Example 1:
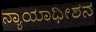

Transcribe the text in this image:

ನ್ಯಾಯಾಧೀಶನ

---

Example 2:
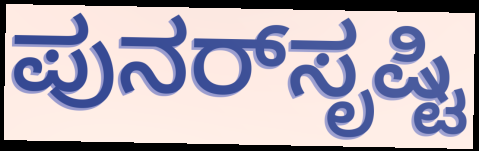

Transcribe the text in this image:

ಪುನರ್‌ಸೃಷ್ಟಿ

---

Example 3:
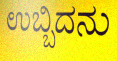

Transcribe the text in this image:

ಉಬ್ಬಿದನು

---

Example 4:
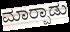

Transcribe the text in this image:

ಮಾರ‍್ಪಾಡು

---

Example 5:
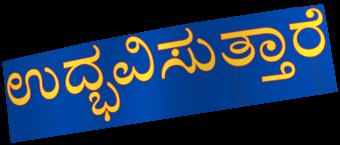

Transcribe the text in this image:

ಉದ್ಭವಿಸುತ್ತಾರೆ